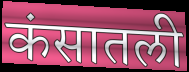
कंसातली